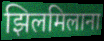
झिलमिलाना